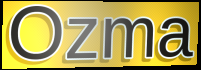
Ozma